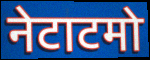
नेटाटमो